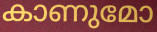
കാണുമോ